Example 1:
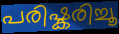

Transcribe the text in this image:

പരിഷ്കരിച്ചൂ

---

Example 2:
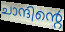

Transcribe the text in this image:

ചാന്ദിന്റെ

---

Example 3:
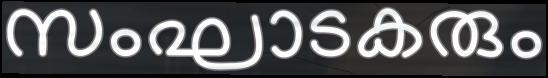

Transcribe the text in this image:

സംഘാടകരും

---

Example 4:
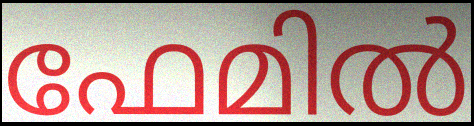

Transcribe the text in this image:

ഫേമിൽ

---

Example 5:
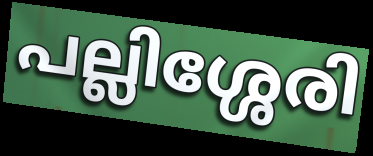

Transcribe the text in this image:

പല്ലിശ്ശേരി